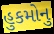
હુકમોનુ